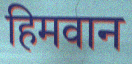
हिमवान